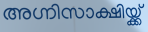
അഗ്നിസാക്ഷിയ്ക്ക്